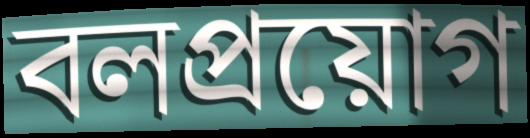
বলপ্ৰয়োগ